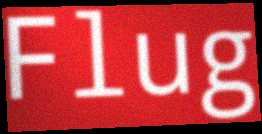
Flug